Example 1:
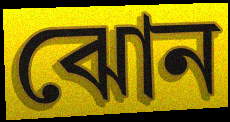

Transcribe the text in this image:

ঝোন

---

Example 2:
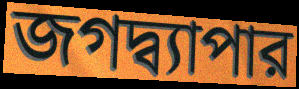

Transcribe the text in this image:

জগদ্ব্যাপার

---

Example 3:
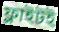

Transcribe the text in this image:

ফ্লাইটই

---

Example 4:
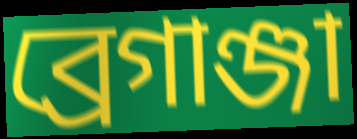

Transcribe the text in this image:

ব্রেগাঞ্জা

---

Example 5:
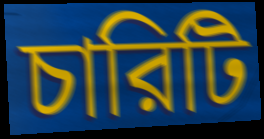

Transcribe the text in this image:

চারিটি